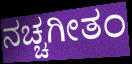
ನಚ್ಚಗೀತಂ